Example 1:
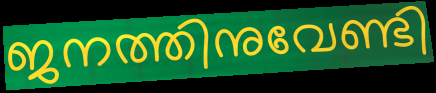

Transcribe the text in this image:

ജനത്തിനുവേണ്ടി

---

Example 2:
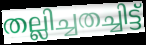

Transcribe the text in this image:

തല്ലിച്ചതച്ചിട്ട്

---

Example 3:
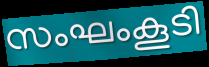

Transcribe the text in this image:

സംഘംകൂടി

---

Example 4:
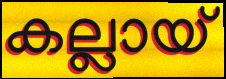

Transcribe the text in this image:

കല്ലായ്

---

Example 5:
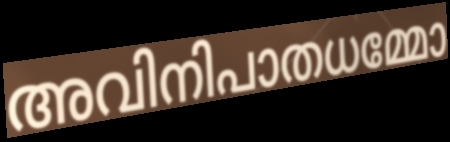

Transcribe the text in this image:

അവിനിപാതധമ്മോ